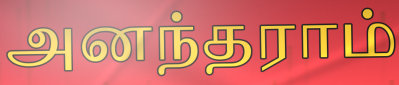
அனந்தராம்